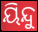
ୟିନ୍ଦୁ